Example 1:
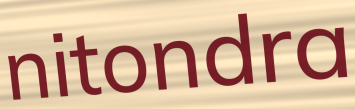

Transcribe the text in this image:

nitondra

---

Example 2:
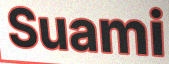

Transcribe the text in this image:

Suami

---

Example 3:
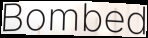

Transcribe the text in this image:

Bombed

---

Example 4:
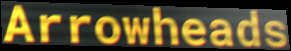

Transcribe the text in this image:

Arrowheads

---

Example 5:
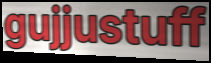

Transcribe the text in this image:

gujjustuff